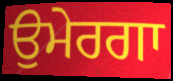
ਉਮੇਰਗਾ